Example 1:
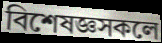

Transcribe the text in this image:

বিশেষজ্ঞসকলে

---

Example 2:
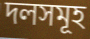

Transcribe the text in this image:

দলসমূহ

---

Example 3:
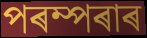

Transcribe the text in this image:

পৰম্পৰাৰ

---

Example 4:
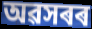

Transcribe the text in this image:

অৱসৰৰ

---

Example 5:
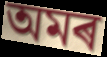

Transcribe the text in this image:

অমৰ